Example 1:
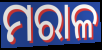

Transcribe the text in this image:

ମରାଳ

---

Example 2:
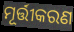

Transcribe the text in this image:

ମୂର୍ତ୍ତୀକରଣ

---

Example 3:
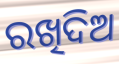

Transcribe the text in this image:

ରଖିଦିଅ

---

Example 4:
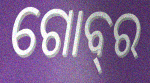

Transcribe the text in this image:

ଗୋବ୍‌ର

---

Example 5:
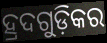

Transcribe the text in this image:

ହ୍ରଦଗୁଡ଼ିକର